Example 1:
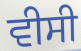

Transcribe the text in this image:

ਵੀਸੀ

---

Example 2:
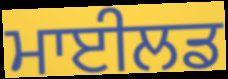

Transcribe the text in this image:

ਮਾਈਲਡ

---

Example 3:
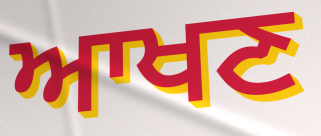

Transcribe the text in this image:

ਆਖਣ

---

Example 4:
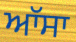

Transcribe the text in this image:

ਆੱਸਾ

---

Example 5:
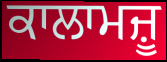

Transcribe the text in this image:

ਕਾਲਾਮਜ਼ੂ